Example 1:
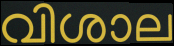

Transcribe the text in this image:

വിശാല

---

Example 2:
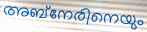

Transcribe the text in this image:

അബ്നേരിനെയും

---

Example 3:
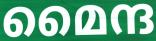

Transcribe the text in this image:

മൈന്ദ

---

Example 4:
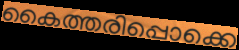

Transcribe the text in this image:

കൈത്തരിപ്പൊക്കെ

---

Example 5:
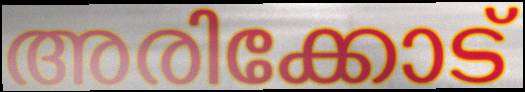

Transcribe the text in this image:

അരിക്കോട്